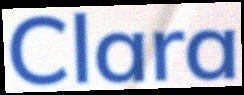
Clara